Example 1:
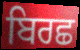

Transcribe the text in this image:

ਬਿਰਛ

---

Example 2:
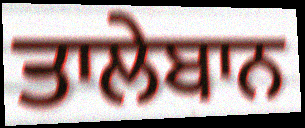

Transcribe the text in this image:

ਤਾਲੇਬਾਨ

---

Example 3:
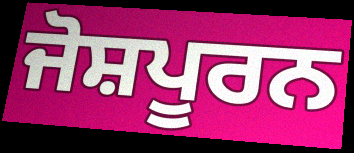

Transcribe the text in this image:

ਜੋਸ਼ਪੂਰਨ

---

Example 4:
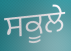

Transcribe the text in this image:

ਸਕੂਲੇ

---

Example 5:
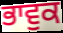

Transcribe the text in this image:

ਭਾਵੁਕ